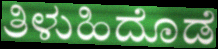
ತಿಳುಹಿದೊಡೆ